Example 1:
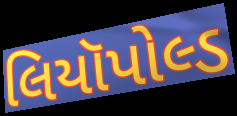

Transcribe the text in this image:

લિયૉપોલ્ડ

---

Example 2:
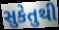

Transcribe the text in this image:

સુકેતુથી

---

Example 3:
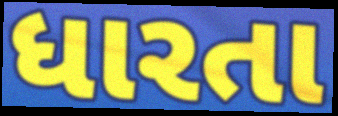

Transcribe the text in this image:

ધારતા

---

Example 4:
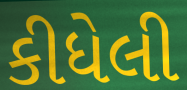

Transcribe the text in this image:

કીધેલી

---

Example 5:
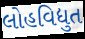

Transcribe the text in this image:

લોહવિદ્યુત